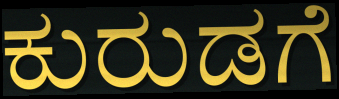
ಕುರುಡಗೆ